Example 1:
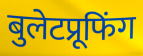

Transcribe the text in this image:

बुलेटप्रूफिंग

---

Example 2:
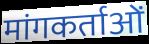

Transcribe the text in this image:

मांगकर्ताओं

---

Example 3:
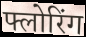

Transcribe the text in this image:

फ्लोरिंग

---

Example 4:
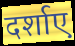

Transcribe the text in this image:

दर्शाए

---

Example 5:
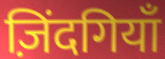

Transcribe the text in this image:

ज़िंदगियाँ